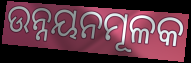
ଉନ୍ନୟନମୂଳକ